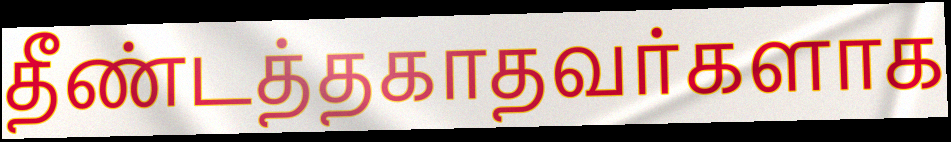
தீண்டத்தகாதவர்களாக